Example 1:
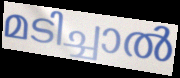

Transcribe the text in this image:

മടിച്ചാൽ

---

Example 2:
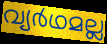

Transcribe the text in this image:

വ്യർഥമല്ല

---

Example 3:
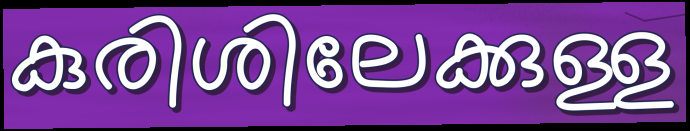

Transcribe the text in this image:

കുരിശിലേക്കുള്ള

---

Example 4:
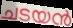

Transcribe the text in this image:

ചടയൻ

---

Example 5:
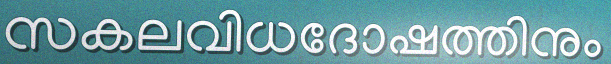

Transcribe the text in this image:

സകലവിധദോഷത്തിനും